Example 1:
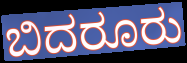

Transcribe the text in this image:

ಬಿದರೂರು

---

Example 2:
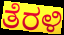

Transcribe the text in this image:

ತೆರಳಿ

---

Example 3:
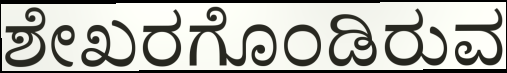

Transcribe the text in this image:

ಶೇಖರಗೊಂಡಿರುವ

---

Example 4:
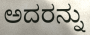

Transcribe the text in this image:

ಅದರನ್ನು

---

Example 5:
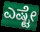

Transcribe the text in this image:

ಎಷ್ಟೇ